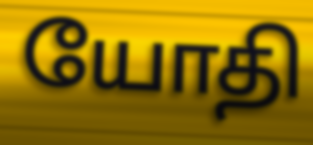
யோதி